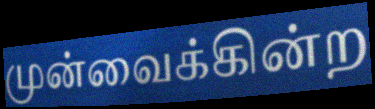
முன்வைக்கின்ற